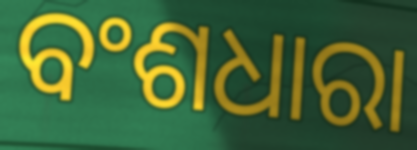
ବଂଶଧାରା